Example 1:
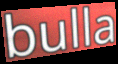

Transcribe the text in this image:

bulla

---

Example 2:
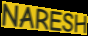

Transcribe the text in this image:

NARESH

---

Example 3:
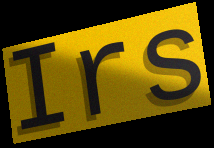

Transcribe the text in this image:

Irs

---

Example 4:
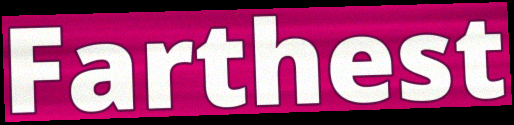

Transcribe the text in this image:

Farthest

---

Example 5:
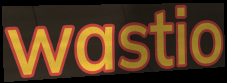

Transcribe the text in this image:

wastio